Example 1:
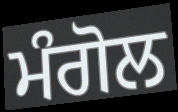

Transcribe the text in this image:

ਮੰਗੋਲ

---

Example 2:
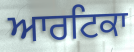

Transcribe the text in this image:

ਆਰਟਿਕਾ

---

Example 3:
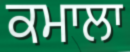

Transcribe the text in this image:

ਕਮਾਲਾ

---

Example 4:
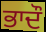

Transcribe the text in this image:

ਭਾਦੌ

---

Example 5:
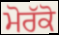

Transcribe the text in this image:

ਮੋਰੱਕੋ